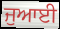
ਜੁਆਈ